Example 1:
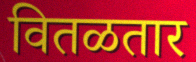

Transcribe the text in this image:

वितळतार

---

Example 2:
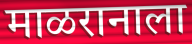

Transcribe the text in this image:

माळरानाला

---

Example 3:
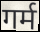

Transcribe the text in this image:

गर्म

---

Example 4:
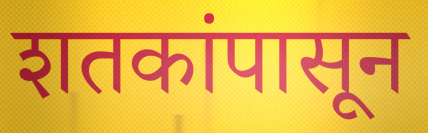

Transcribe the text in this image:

शतकांपासून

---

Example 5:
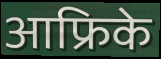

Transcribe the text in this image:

आफ्रिके